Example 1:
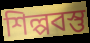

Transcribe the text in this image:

শিল্পবস্তু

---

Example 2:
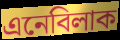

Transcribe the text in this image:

এনেবিলাক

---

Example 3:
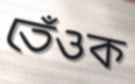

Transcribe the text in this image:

তেঁওক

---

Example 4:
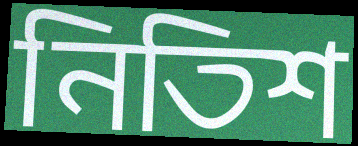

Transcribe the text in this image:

নিতিশ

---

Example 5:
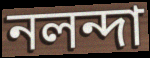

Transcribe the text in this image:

নলন্দা